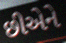
છીએને